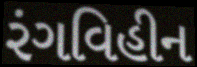
રંગવિહીન